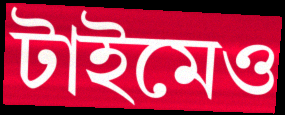
টাইমেও